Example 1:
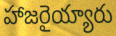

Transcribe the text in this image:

హాజరైయ్యారు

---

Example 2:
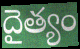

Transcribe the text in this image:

దైత్యం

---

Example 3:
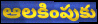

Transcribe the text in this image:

ఆలకింపుకు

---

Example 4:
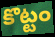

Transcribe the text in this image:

కొట్టం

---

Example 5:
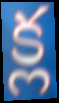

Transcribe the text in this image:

క్ల